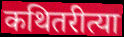
कथितरीत्या